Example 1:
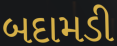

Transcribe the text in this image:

બદામડી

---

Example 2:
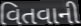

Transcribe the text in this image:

વિતવાની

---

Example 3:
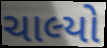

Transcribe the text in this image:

ચાલ્યો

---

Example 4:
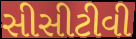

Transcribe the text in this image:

સીસીટીવી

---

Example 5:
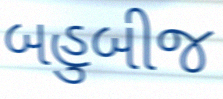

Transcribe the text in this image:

બહુબીજ